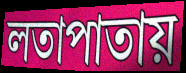
লতাপাতায়